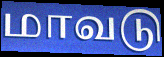
மாவடு